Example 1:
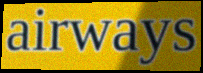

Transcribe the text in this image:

airways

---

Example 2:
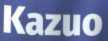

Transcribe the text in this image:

Kazuo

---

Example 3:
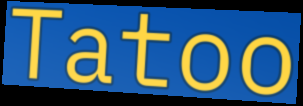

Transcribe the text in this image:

Tatoo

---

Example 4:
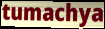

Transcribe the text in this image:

tumachya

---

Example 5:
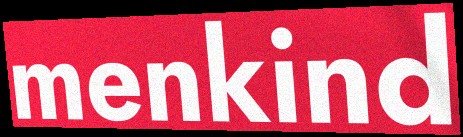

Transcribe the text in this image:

menkind